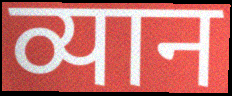
व्यान